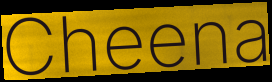
Cheena